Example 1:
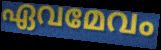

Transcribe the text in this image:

ഏവമേവം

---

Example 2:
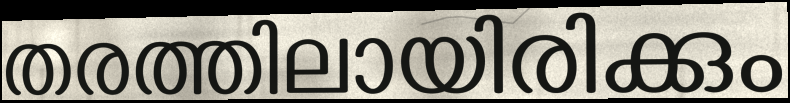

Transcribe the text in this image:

തരത്തിലായിരിക്കും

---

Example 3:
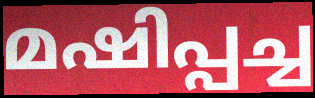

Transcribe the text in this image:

മഷിപ്പച്ച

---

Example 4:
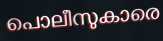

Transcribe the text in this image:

പൊലീസുകാരെ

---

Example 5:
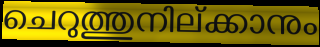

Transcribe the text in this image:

ചെറുത്തുനില്ക്കാനും